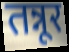
तन्नूर